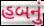
હબનું